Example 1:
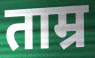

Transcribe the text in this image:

ताम्र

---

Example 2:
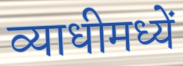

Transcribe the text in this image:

व्याधीमध्यें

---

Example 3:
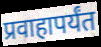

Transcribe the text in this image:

प्रवाहापर्यंत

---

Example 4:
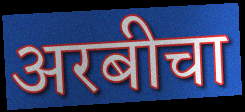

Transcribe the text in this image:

अरबीचा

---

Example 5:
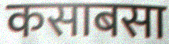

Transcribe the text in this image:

कसाबसा